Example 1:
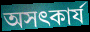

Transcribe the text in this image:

অসৎকার্য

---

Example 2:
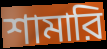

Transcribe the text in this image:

শামারি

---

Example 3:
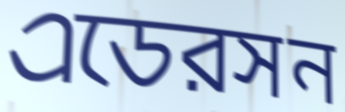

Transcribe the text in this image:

এডেরসন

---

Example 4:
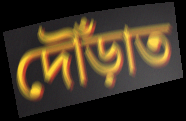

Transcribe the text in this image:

দৌঁড়াত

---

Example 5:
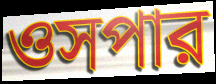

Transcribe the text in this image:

ওসপার